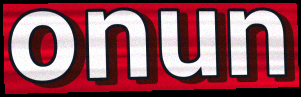
onun